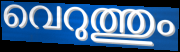
വെറുത്തും